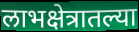
लाभक्षेत्रातल्या